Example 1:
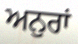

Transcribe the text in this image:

ਅਨੁਰਾਂ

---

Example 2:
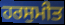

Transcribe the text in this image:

ਹਰਸੁਮੀਤ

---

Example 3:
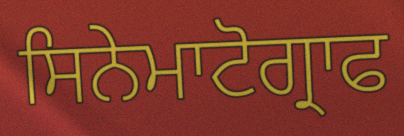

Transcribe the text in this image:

ਸਿਨੇਮਾਟੋਗ੍ਰਾਫ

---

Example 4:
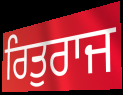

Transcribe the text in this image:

ਰਿਤੁਰਾਜ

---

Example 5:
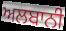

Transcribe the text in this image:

ਅਲਬਾਨੀ